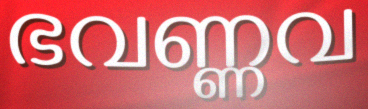
ഭവണ്ണവ